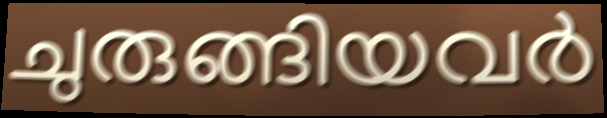
ചുരുങ്ങിയവർ